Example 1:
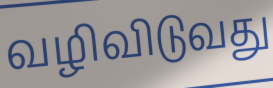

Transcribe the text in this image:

வழிவிடுவது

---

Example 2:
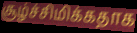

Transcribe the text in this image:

சூழ்ச்சிமிக்கதாக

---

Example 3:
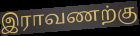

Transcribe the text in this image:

இராவணற்கு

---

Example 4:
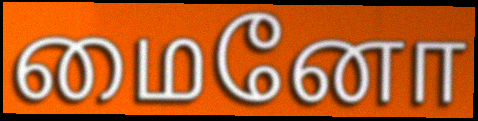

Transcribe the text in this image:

மைனோ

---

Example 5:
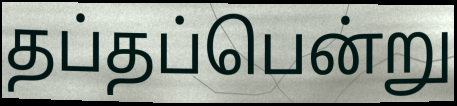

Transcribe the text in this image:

தப்தப்பென்று